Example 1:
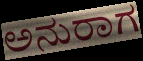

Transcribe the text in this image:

ಅನುರಾಗ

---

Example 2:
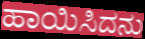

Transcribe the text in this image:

ಹಾಯಿಸಿದನು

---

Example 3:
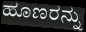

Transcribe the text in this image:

ಹೂಣರನ್ನು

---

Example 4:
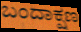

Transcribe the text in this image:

ಬಂದಾಕ್ಷಣ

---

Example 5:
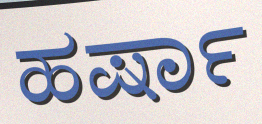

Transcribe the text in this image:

ಹರ್ಷಾ